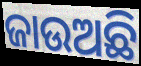
ଜାଉଅଛି